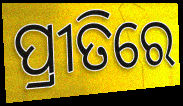
ପ୍ରୀତିରେ